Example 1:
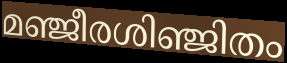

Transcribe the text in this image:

മഞ്ജീരശിഞ്ജിതം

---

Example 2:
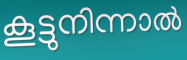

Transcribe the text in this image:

കൂട്ടുനിന്നാൽ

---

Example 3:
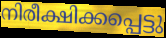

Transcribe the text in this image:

നിരീക്ഷിക്കപ്പെട്ടു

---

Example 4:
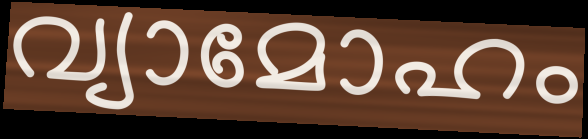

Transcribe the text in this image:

വ്യാമോഹം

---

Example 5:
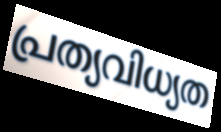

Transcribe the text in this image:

പ്രത്യവിധ്യത